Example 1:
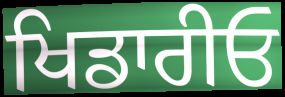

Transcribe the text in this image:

ਖਿਡਾਰੀਓ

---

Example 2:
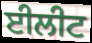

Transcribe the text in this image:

ਈਲੀਟ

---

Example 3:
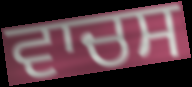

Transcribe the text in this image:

ਵਾਚਸ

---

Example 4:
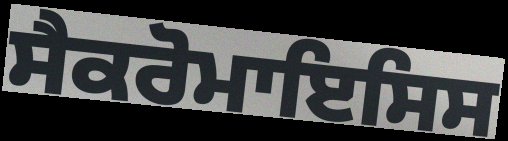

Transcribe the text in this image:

ਸੈਕਰੋਮਾਇਸਿਸ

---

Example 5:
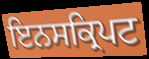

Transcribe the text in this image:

ਇਨਸਕ੍ਰਿਪਟ